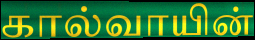
கால்வாயின்